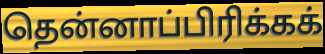
தென்னாப்பிரிக்கக்